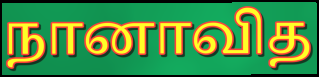
நானாவித